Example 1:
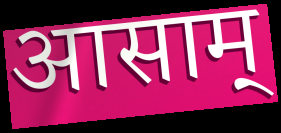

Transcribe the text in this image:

आसाम्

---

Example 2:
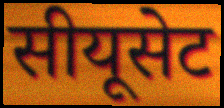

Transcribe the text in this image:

सीयूसेट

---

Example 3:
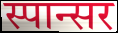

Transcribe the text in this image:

स्पान्सर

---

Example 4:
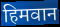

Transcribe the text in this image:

हिमवान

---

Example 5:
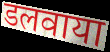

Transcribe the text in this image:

डलवाया